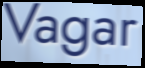
Vagar